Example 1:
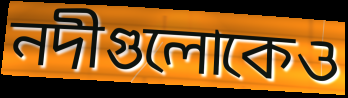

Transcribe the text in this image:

নদীগুলোকেও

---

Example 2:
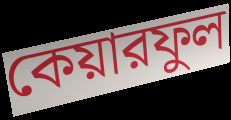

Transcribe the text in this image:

কেয়ারফুল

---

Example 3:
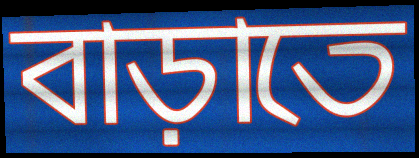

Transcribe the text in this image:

বাড়াতে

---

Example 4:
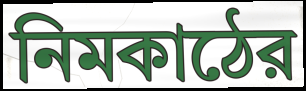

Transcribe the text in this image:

নিমকাঠের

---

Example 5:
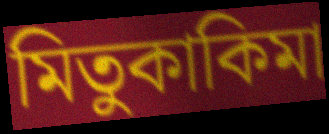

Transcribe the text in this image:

মিতুকাকিমা